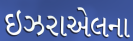
ઇઝરાએલના